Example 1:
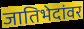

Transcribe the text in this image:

जातिभेदांवर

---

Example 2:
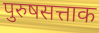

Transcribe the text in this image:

पुरुषसत्ताक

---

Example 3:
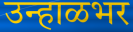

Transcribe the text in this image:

उन्हाळभर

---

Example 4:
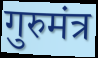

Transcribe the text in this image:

गुरुमंत्र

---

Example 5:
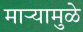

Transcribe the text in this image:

माऱ्यामुळे